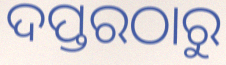
ଦପ୍ତରଠାରୁ